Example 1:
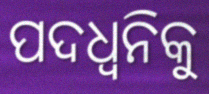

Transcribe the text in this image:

ପଦଧ୍ୱନିକୁ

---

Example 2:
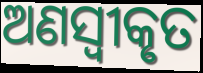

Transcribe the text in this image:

ଅଣସ୍ୱୀକୃତ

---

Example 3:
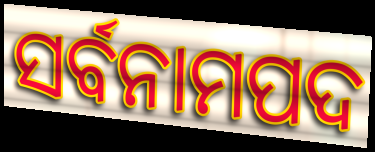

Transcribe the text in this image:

ସର୍ବନାମପଦ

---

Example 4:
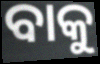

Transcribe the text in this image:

ବାକୁ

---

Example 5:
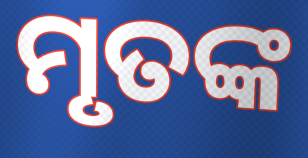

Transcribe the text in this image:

ମୃତଙ୍କ